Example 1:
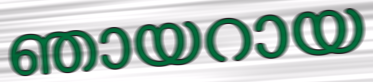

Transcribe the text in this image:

ഞായറായ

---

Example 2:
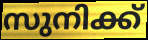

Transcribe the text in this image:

സുനിക്ക്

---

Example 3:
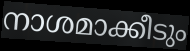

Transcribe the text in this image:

നാശമാക്കീടും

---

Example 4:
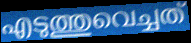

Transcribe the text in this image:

എടുത്തുവെച്ചത്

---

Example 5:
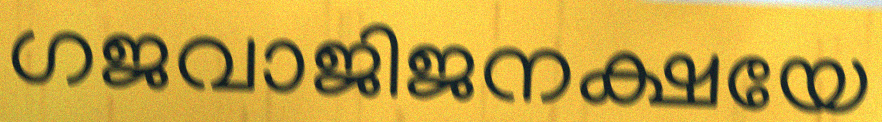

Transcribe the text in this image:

ഗജവാജിജനക്ഷയേ